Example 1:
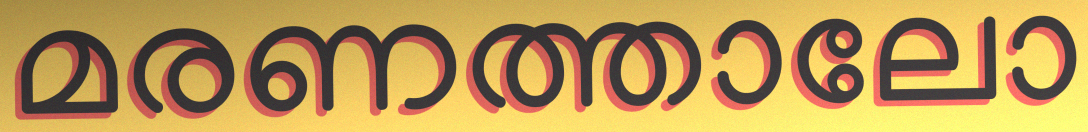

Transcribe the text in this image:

മരണത്താലോ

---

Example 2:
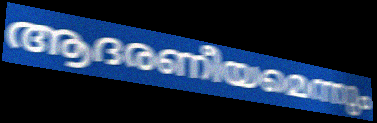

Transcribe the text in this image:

ആദരണീയമെന്നും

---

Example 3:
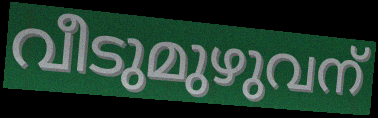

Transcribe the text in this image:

വീടുമുഴുവന്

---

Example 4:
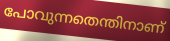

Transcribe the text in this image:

പോവുന്നതെന്തിനാണ്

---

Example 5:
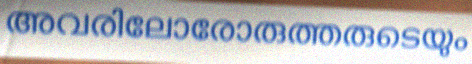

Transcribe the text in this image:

അവരിലോരോരുത്തരുടെയും